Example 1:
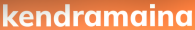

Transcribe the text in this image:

kendramaina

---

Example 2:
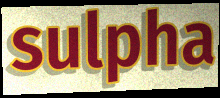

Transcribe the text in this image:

sulpha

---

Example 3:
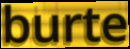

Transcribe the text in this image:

burte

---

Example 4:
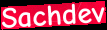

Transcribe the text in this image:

Sachdev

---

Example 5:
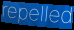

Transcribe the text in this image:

repelled